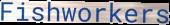
Fishworkers